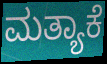
ಮತ್ಯಾಕೆ